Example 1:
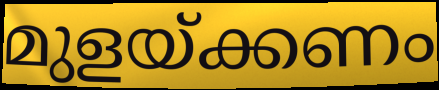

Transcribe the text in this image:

മുളയ്ക്കണം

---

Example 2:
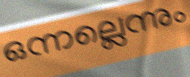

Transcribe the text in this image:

ഒന്നല്ലെന്നും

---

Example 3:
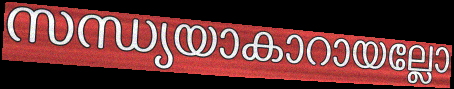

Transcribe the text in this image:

സന്ധ്യയാകാറായല്ലോ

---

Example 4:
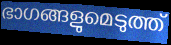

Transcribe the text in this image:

ഭാഗങ്ങളുമെടുത്ത്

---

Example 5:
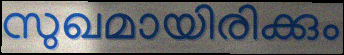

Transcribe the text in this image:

സുഖമായിരിക്കും